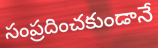
సంప్రదించకుండానే